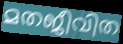
മതജീവിത